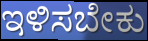
ಇಳಿಸಬೇಕು